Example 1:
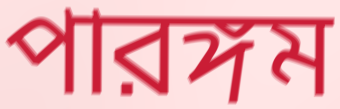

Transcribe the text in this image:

পারঙ্গম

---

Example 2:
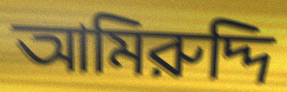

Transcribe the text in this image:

আমিরুদ্দি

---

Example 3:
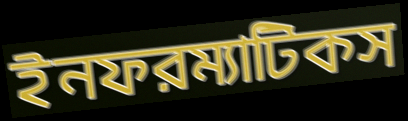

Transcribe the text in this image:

ইনফরম্যাটিকস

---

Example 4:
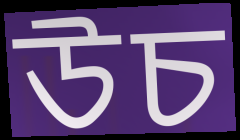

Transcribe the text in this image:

উচ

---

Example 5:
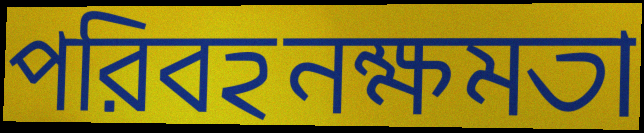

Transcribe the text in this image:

পরিবহনক্ষমতা